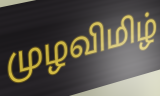
முழவிமிழ்